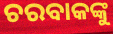
ଚରବାକଙ୍କୁ